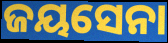
ଜୟସେନା